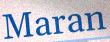
Maran